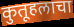
कुतूहलाचा